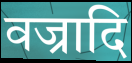
वज्रादि